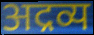
अद्रव्य